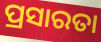
ପ୍ରସାରତା